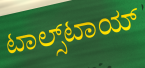
ಟಾಲ್ಸ್‌ಟಾಯ್